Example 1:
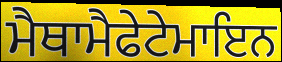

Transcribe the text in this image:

ਮੈਥਾਮੈਫੇਟੇਮਾਇਨ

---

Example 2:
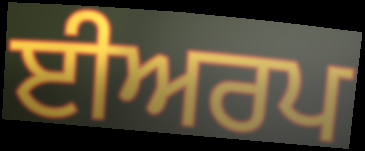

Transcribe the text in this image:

ਈਅਰਪ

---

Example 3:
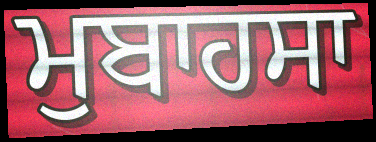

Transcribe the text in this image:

ਮੁਬਾਹਸਾ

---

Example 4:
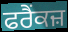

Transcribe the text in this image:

ਫਰੈਂਕਜ਼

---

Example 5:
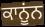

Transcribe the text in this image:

ਕਾਨੂਂਨ